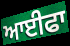
ਆਈਫਾ